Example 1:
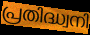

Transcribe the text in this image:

പ്രതിദ്ധ്വനി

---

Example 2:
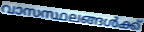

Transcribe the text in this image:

വാസസ്ഥലങ്ങൾക്ക്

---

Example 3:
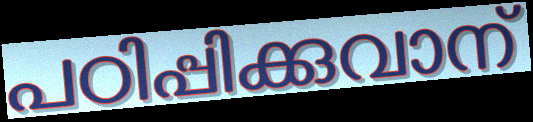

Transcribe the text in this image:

പഠിപ്പിക്കുവാന്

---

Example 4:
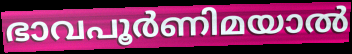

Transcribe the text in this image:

ഭാവപൂർണിമയാൽ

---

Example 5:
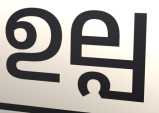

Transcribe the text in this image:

ഉല്പ